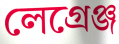
লেগ্রেঞ্জ